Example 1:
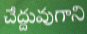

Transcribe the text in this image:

చేద్దువుగాని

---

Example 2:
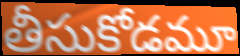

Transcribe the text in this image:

తీసుకోడమూ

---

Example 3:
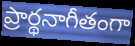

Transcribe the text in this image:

ప్రార్థనాగీతంగా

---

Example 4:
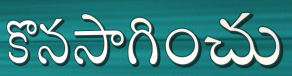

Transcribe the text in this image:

కొనసాగించు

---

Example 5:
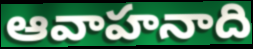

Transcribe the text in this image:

ఆవాహనాది